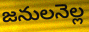
జనులనెల్ల